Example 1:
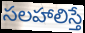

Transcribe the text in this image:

సలహాలిస్తే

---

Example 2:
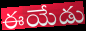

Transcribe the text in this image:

ఈయేడు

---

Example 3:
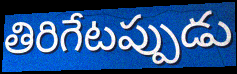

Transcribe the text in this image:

తిరిగేటప్పుడు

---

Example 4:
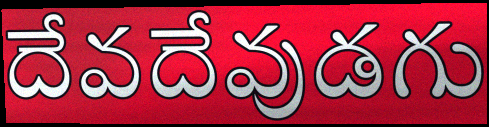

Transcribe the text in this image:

దేవదేవుడగు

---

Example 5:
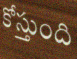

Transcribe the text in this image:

కోస్తుంది